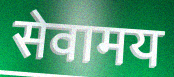
सेवामय